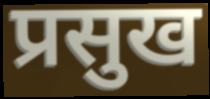
प्रसुख